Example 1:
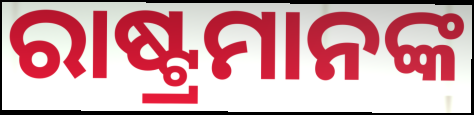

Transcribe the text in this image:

ରାଷ୍ଟ୍ରମାନଙ୍କ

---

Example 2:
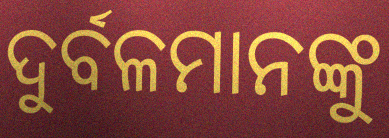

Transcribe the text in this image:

ଦୁର୍ବଳମାନଙ୍କୁ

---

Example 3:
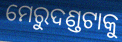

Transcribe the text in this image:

ମେରୁଦଣ୍ଡଟାକୁ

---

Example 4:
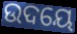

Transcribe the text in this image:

ଉଦୟେ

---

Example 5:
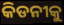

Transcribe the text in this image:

କିଡନୀକୁ